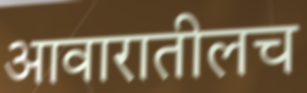
आवारातीलच